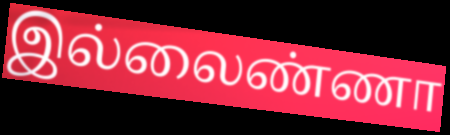
இல்லைண்ணா